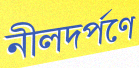
নীলদর্পণে